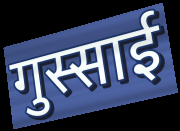
गुस्साई